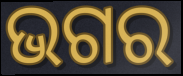
ଭଗର